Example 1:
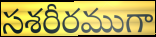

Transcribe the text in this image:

సశరీరముగా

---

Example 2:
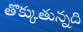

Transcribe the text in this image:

తొక్కుతున్నది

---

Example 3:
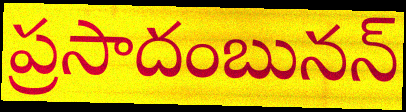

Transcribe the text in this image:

ప్రసాదంబునన్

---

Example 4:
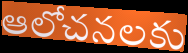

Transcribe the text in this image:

ఆలోచనలకు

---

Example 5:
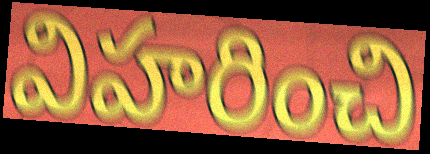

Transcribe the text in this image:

విహరించి